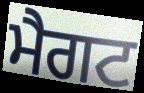
ਮੈਗਟ